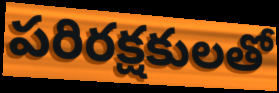
పరిరక్షకులతో